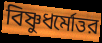
বিষ্ণুধর্মোত্তর